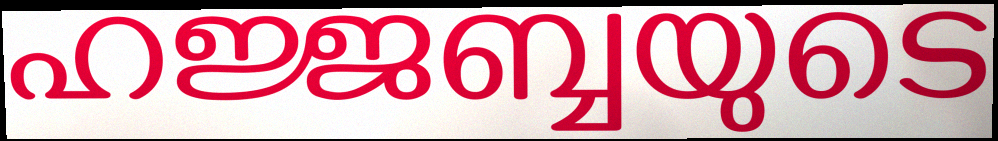
ഹജ്ജബ്ബയുടെ